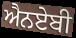
ਐਨਏਬੀ